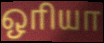
ஒரியா